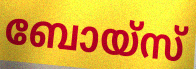
ബോയ്സ്